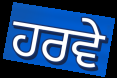
ਹਰਵੇ